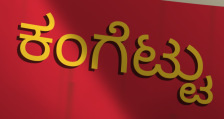
ಕಂಗೆಟ್ಟು